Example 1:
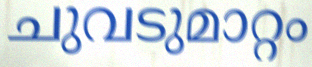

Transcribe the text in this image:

ചുവടുമാറ്റം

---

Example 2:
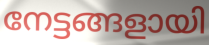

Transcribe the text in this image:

നേട്ടങ്ങളായി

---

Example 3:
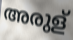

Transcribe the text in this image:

അരുള്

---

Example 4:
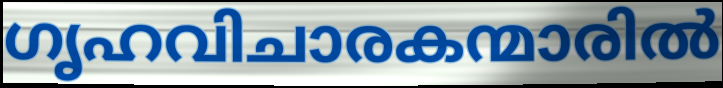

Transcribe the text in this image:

ഗൃഹവിചാരകന്മാരിൽ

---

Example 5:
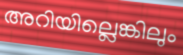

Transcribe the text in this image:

അറിയില്ലെങ്കിലും